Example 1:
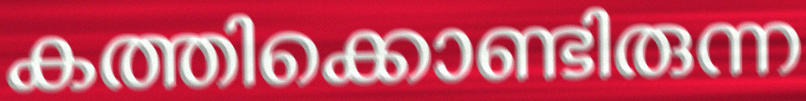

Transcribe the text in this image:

കത്തിക്കൊണ്ടിരുന്ന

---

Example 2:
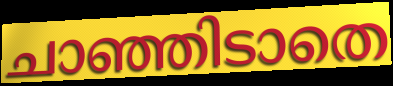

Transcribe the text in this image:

ചാഞ്ഞിടാതെ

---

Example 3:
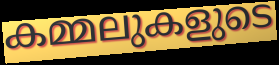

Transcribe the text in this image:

കമ്മലുകളുടെ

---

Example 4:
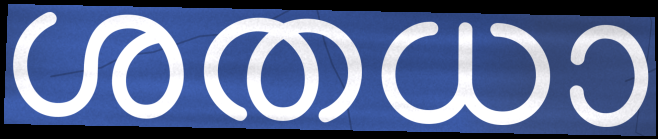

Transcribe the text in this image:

ശതധാ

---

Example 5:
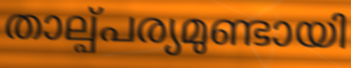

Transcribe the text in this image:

താല്പ്പര്യമുണ്ടായി